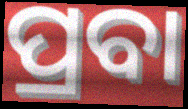
ପ୍ରବା